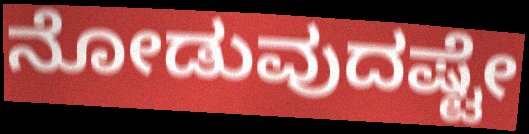
ನೋಡುವುದಷ್ಟೇ